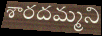
శారదమ్మని